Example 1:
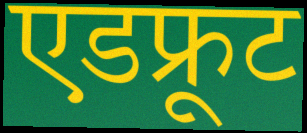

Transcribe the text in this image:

एडफ्रूट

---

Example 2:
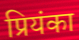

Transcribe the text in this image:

प्रियंका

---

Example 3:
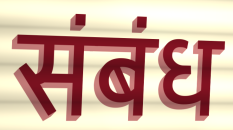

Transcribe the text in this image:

संबंध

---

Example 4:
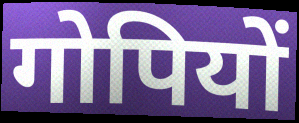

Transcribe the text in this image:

गोपियों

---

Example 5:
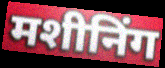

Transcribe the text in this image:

मशीनिंग